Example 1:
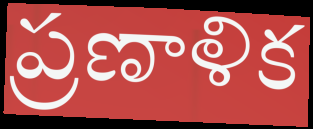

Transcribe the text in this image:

ప్రణాళిక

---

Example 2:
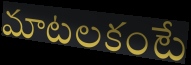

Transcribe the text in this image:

మాటలకంటే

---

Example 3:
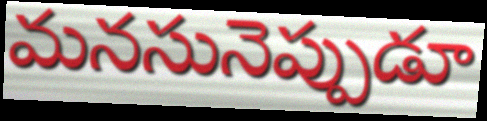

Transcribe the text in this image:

మనసునెప్పుడూ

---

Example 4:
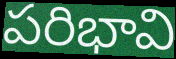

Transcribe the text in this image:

పరిభావి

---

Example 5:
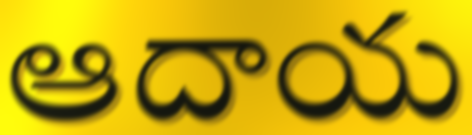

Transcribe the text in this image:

ఆదాయ